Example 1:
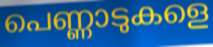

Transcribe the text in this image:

പെണ്ണാടുകളെ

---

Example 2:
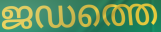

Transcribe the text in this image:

ജഡത്തെ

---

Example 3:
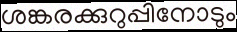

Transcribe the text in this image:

ശങ്കരക്കുറുപ്പിനോടും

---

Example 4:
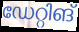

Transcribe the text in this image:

ഡേറ്റിങ്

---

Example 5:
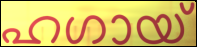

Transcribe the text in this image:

ഹഗായ്